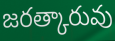
జరత్కారువు